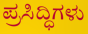
ಪ್ರಸಿದ್ಧಿಗಳು